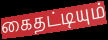
கைதட்டியும்